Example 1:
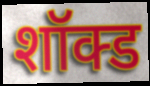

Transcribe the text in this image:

शॉक्ड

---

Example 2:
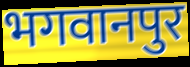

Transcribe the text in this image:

भगवानपुर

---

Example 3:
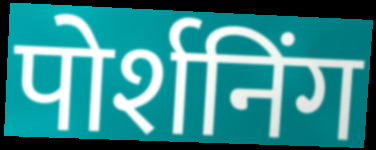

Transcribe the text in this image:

पोर्शनिंग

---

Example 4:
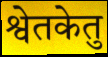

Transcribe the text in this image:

श्वेतकेतु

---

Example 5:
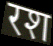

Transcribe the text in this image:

रश